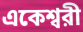
একেশ্বরী